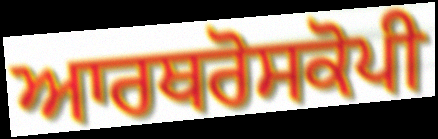
ਆਰਥਰੋਸਕੋਪੀ